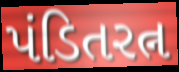
પંડિતરત્ન